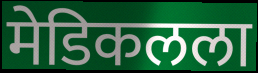
मेडिकलला